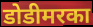
डोडीमरका